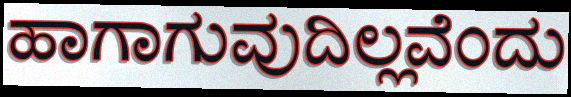
ಹಾಗಾಗುವುದಿಲ್ಲವೆಂದು